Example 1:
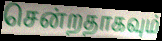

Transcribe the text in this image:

சென்றதாகவும்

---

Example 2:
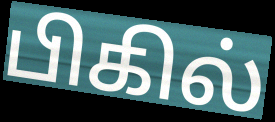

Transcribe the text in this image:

பிகில்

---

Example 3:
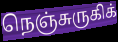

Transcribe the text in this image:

நெஞ்சுருகிக்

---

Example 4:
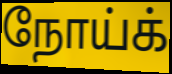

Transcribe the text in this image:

நோய்க்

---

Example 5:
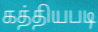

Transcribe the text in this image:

கத்தியபடி